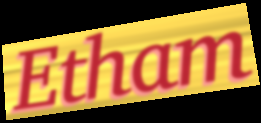
Etham